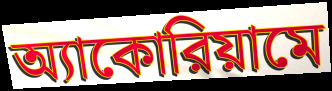
অ্যাকোরিয়ামে